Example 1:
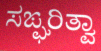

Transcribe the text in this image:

ಸಙ್ಘರಿತ್ವಾ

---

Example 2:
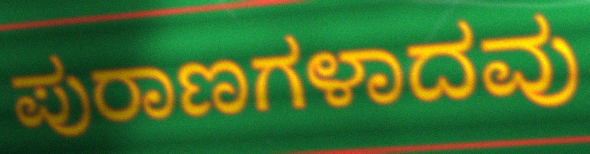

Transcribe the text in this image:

ಪುರಾಣಗಳಾದವು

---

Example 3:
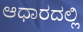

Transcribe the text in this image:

ಆಧಾರದಲ್ಲಿ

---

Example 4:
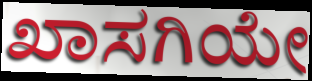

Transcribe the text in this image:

ಖಾಸಗಿಯೇ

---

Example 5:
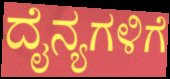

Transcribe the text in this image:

ದೈನ್ಯಗಳಿಗೆ